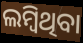
ଲମ୍ବିଥିବା